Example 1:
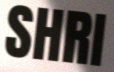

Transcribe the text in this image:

SHRI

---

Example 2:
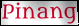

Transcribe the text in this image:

Pinang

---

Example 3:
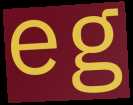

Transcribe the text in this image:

eg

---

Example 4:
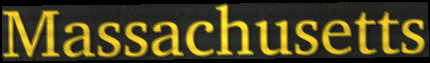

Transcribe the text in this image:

Massachusetts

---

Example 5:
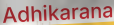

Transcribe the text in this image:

Adhikarana